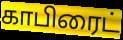
காபிரைட்